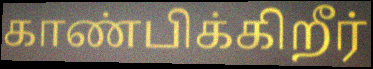
காண்பிக்கிறீர்